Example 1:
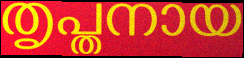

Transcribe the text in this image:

തൃപ്തനായ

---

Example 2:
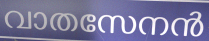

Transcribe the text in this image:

വാതസേനൻ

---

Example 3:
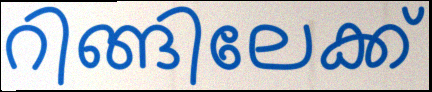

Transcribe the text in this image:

റിങ്ങിലേക്ക്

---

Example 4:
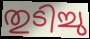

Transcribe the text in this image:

തുടിച്ചു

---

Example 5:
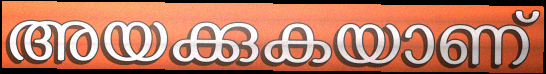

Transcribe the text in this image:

അയക്കുകയാണ്